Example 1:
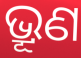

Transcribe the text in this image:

ଭ୍ରୂଣ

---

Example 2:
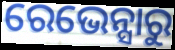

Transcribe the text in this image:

ରେଭେନ୍ସାରୁ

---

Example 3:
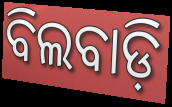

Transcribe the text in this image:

ବିଲବାଡ଼ି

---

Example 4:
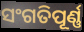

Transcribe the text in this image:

ସଂଗତିପୂର୍ଣ୍ଣ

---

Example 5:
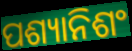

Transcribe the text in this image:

ପଶ୍ୟାନିଶଂ